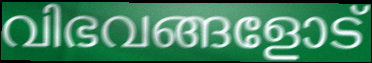
വിഭവങ്ങളോട്